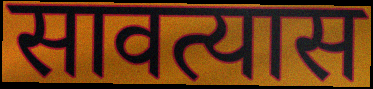
सावत्यास